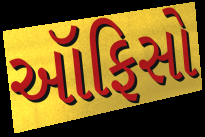
ઑફિસો